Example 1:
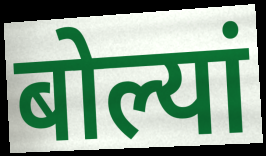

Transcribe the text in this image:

बोल्यां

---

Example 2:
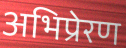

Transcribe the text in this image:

अभिप्रेरण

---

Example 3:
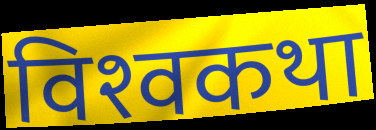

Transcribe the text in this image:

विश्वकथा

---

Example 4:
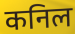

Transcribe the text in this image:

कनिल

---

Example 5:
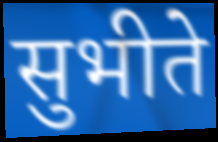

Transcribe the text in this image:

सुभीते